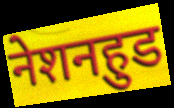
नेशनहुड